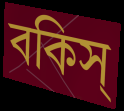
বকিস্